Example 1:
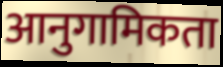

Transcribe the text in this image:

आनुगामिकता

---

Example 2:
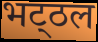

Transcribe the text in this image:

भट्‌ठल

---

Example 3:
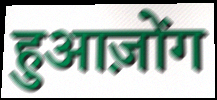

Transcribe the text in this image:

हुआज़ोंग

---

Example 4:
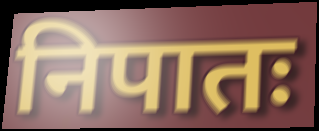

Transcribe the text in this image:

निपातः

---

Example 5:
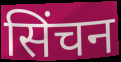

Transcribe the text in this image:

सिंचन